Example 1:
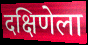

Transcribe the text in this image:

दक्षिणेला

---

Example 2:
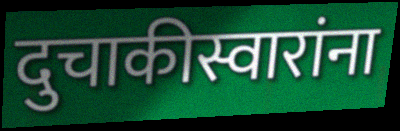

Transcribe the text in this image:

दुचाकीस्वारांना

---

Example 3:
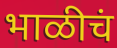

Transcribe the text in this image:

भाळीचं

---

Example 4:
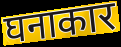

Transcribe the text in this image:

घनाकार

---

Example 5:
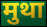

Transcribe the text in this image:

मुथा